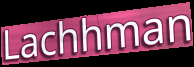
Lachhman